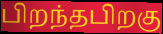
பிறந்தபிறகு